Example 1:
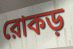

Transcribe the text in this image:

রোকড়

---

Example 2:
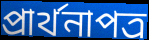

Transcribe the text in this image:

প্রার্থনাপত্র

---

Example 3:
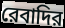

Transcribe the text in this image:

রেবাদির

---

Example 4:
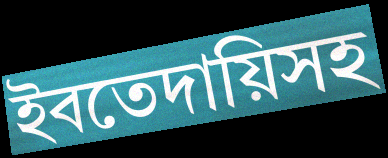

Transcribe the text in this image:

ইবতেদায়িসহ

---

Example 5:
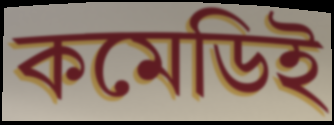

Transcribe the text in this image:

কমেডিই